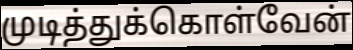
முடித்துக்கொள்வேன்